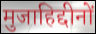
मुजाहिद्दीनों